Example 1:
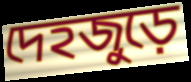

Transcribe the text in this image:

দেহজুড়ে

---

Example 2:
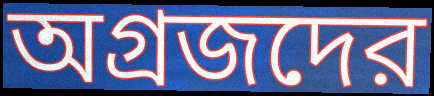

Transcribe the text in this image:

অগ্রজদের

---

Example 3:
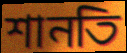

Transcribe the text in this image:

শানতি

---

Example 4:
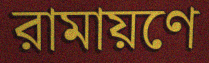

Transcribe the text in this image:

রামায়ণে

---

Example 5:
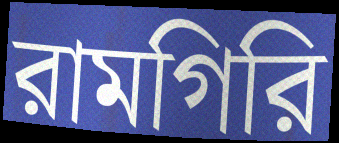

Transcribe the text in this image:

রামগিরি